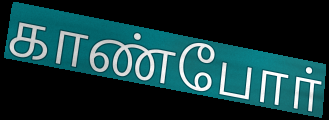
காண்போர்